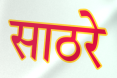
साठरे